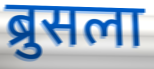
ब्रुसला